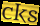
cks